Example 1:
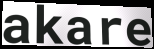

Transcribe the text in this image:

akare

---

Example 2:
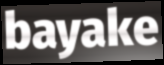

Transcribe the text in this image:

bayake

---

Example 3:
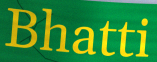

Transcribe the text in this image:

Bhatti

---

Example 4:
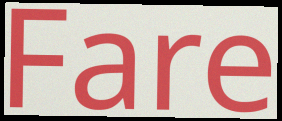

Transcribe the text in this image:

Fare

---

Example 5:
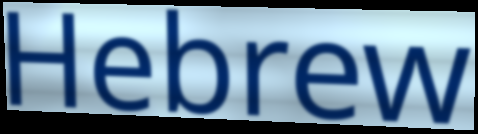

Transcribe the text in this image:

Hebrew